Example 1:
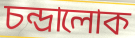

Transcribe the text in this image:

চন্দ্ৰালোক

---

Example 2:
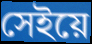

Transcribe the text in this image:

সেইয়ে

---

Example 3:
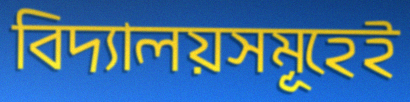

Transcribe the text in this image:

বিদ্যালয়সমূহেই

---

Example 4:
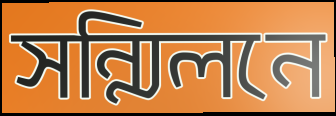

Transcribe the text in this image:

সন্মিলনে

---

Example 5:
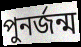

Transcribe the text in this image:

পুনৰ্জন্ম